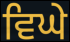
ਵਿਘੇ